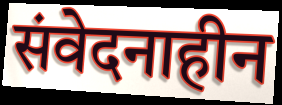
संवेदनाहीन